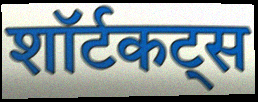
शॉर्टकट्स